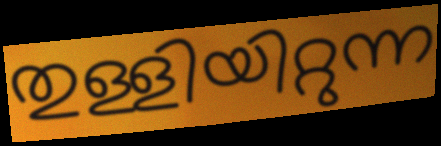
തുള്ളിയിറ്റുന്ന